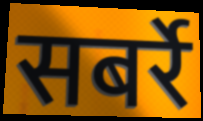
सबर्रे